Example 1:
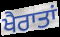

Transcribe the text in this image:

ਖੈਰਾਤਾਂ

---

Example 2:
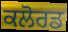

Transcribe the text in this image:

ਕਲੋਰਡ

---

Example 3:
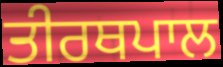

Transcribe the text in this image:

ਤੀਰਥਪਾਲ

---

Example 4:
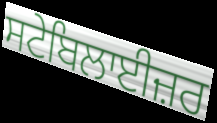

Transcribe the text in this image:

ਸਟੇਬਿਲਾਈਜ਼ਰ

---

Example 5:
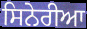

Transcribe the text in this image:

ਸਿਨੇਰੀਆ